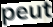
peut